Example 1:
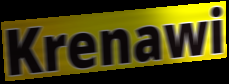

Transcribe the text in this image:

Krenawi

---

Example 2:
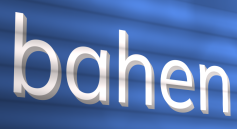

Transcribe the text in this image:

bahen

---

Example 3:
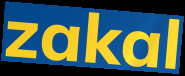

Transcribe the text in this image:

zakal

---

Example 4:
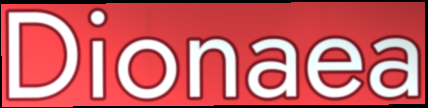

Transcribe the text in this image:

Dionaea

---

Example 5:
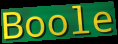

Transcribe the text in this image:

Boole